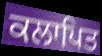
ਕਲਾਪਿਤ